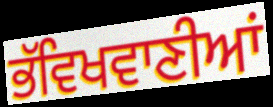
ਭੱਵਿਖਵਾਣੀਆਂ